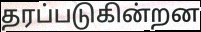
தரப்படுகின்றன